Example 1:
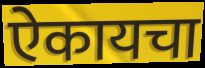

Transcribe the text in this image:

ऐकायचा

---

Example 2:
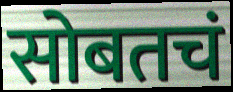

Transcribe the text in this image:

सोबतचं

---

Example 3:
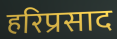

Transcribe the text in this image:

हरिप्रसाद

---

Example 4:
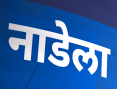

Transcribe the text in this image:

नाडेला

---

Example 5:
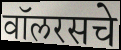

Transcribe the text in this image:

वॉलरसचे